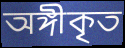
অঙ্গীকৃত